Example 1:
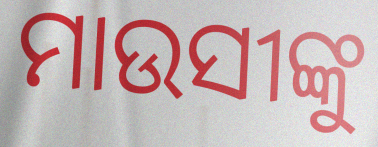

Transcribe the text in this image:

ମାଉସୀଙ୍କୁ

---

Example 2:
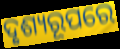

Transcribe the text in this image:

ଦୃଶ୍ୟରୂପରେ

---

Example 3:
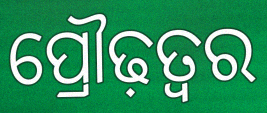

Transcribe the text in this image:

ପ୍ରୌଢ଼ତ୍ୱର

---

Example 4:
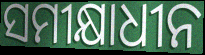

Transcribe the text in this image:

ସମୀକ୍ଷାଧୀନ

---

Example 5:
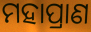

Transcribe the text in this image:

ମହାପ୍ରାଣ